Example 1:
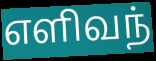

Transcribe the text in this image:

எளிவந்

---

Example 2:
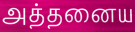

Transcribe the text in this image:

அத்தனைய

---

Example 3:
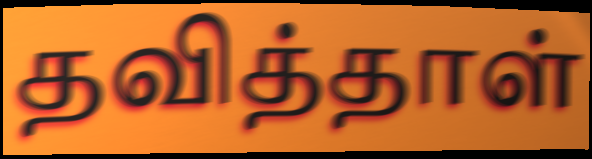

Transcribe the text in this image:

தவித்தாள்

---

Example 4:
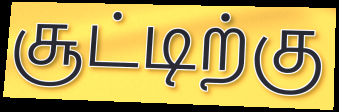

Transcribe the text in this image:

சூட்டிற்கு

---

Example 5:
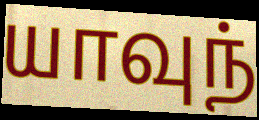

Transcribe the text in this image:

யாவுந்